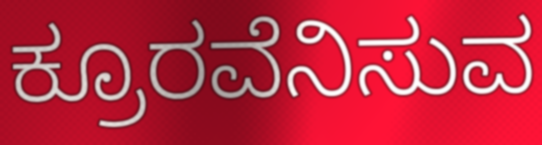
ಕ್ರೂರವೆನಿಸುವ